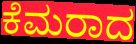
ಕೆಮರಾದ